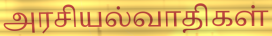
அரசியல்வாதிகள்